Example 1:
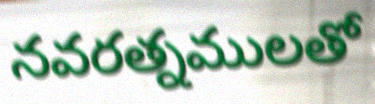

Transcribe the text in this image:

నవరత్నములతో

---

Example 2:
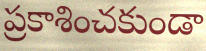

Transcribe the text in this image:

ప్రకాశించకుండా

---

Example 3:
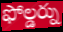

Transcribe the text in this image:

ఫోల్డర్ను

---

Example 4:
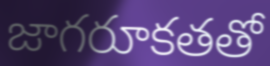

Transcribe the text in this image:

జాగరూకతతో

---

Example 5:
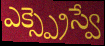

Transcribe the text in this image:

ఎక్స్ప్రెస్వే